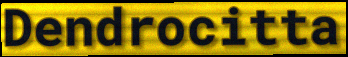
Dendrocitta